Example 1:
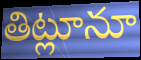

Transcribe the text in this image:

తిట్లూనూ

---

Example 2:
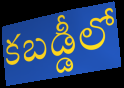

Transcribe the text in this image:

కబడ్డీలో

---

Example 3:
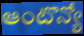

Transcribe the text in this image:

ఆంటొన్యో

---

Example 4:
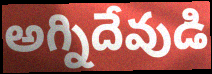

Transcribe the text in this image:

అగ్నిదేవుడి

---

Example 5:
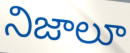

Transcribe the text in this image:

నిజాలూ